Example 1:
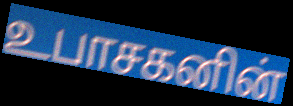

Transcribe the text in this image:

உபாசகனின்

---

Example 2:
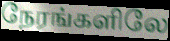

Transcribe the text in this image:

நேரங்களிலே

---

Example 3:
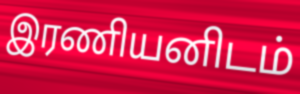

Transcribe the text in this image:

இரணியனிடம்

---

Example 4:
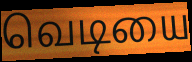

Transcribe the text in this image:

வெடியை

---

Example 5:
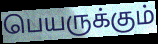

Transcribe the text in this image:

பெயருக்கும்